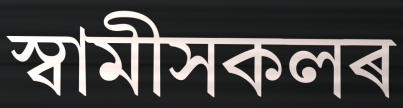
স্বামীসকলৰ